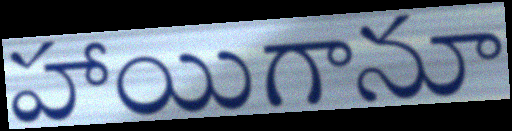
హాయిగానూ